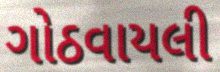
ગોઠવાયલી